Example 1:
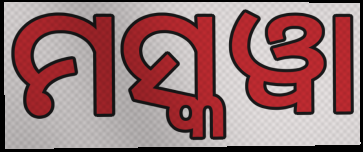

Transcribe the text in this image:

ମସ୍କୱା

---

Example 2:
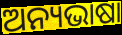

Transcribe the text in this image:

ଅନ୍ୟଭାଷା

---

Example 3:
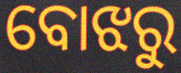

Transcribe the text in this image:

ବୋଝରୁ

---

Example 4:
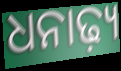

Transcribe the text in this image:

ଧନାଢ଼୍ୟ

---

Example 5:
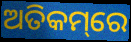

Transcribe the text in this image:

ଅତିକମ୍‌ରେ